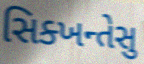
સિક્ખન્તેસુ